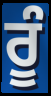
ਰੂੰ